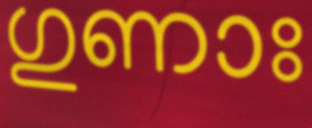
ഗുണാഃ